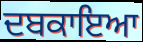
ਦਬਕਾਇਆ